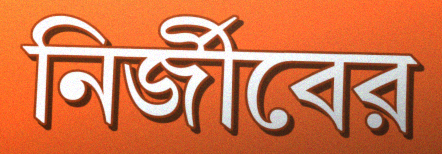
নির্জীবের